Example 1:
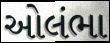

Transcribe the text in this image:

ઓલંભા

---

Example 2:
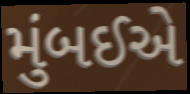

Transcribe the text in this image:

મુંબઈએ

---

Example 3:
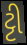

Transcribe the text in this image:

ટ્ટી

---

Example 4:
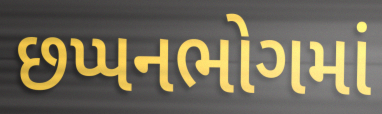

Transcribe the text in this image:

છપ્પનભોગમાં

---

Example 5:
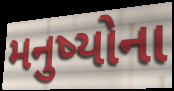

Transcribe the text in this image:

મનુષ્યોના